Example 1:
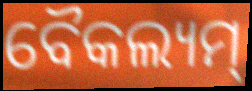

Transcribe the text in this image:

ବୈକଲ୍ୟମ୍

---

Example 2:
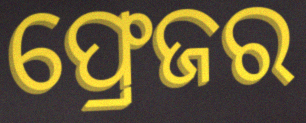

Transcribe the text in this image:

ଫ୍ରେଜର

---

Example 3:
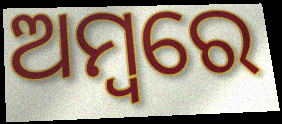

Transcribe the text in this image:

ଅମ୍ବରେ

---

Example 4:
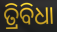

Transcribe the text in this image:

ତ୍ରିବିଧା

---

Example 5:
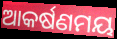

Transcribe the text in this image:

ଆକର୍ଷଣମୟ